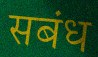
सबंध